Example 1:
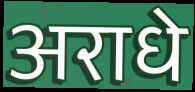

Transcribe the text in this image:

अराधे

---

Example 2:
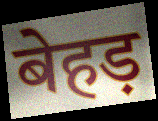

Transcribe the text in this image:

बेहड़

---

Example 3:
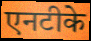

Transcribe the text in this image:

एनटीके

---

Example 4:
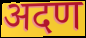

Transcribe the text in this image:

अदण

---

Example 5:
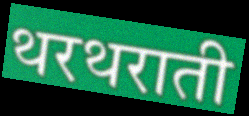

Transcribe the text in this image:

थरथराती